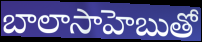
బాలాసాహెబుతో